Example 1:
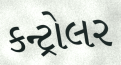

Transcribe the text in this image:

કન્ટ્રોલર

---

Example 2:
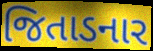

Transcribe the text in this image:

જિતાડનાર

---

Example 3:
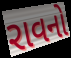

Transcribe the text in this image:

રાવનો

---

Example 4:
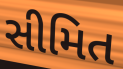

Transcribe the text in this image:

સીમિત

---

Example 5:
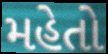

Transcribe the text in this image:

મહેતો